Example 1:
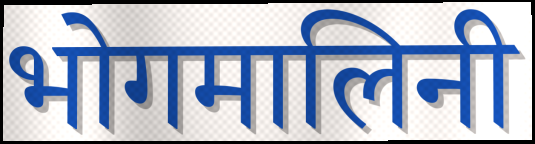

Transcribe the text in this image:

भोगमालिनी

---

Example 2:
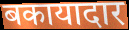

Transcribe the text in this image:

बकायादार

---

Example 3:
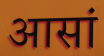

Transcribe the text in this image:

आसां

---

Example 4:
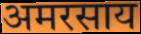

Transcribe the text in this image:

अमरसाय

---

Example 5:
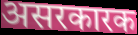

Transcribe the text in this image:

असरकारक